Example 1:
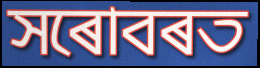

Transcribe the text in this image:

সৰোবৰত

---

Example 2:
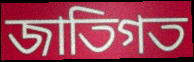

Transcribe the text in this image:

জাতিগত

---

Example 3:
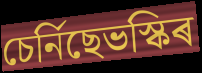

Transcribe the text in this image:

চেৰ্নিছেভস্কিৰ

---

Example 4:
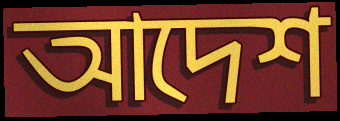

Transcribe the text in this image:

আদেশ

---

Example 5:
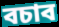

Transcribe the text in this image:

বচাব